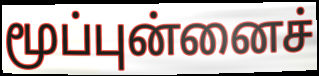
மூப்புன்னைச்